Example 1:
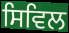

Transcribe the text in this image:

ਸਿਵਿਲ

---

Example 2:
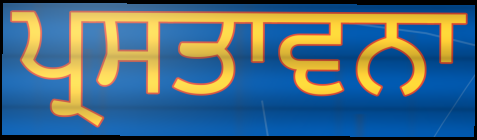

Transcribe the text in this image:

ਪ੍ਰਸਤਾਵਨਾ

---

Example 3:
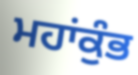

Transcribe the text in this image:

ਮਹਾਂਕੁੰਭ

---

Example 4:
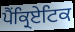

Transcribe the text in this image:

ਪੈਂਕ੍ਰਿਏਟਿਕ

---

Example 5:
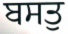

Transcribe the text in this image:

ਬਸਤੁ